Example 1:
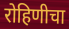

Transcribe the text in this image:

रोहिणीचा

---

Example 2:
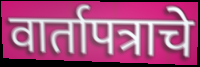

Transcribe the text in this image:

वार्तापत्राचे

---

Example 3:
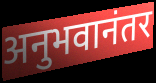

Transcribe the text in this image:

अनुभवानंतर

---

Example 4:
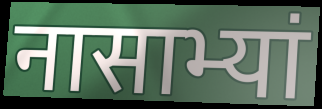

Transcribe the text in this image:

नासाभ्यां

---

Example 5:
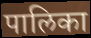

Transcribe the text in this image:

पालिका